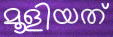
മൂളിയത്